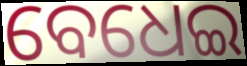
ବେଧେଇ